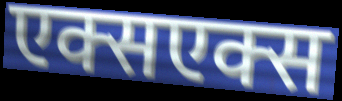
एक्सएक्स